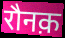
रौनक़